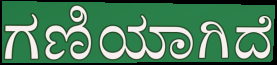
ಗಣಿಯಾಗಿದೆ